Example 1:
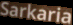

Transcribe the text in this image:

Sarkaria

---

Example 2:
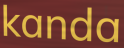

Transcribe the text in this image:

kanda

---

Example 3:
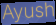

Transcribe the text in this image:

Ayush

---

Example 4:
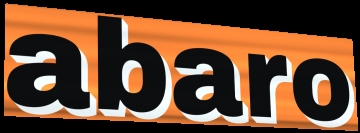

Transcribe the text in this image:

abaro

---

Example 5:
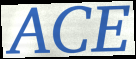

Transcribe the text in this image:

ACE